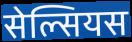
सेल्सियस